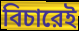
বিচারেই